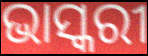
ଭାସ୍କରୀ